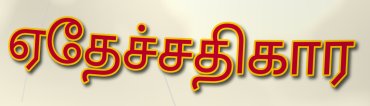
ஏதேச்சதிகார